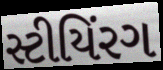
સ્ટીયિંરગ